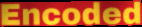
Encoded